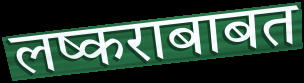
लष्कराबाबत